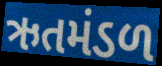
ઋતમંડળ